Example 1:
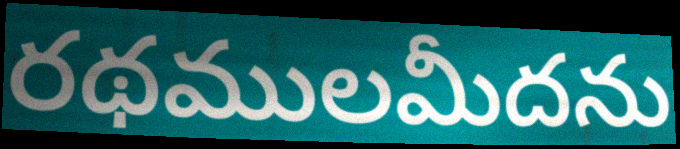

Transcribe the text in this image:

రథములమీదను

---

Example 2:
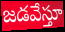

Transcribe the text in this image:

జడవేస్తూ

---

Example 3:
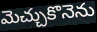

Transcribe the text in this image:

మెచ్చుకొనెను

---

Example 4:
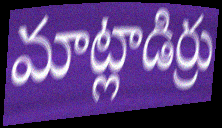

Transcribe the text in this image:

మాట్లాడిర్రు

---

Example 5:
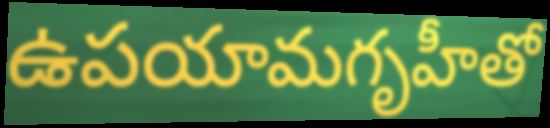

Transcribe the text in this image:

ఉపయామగృహీతో